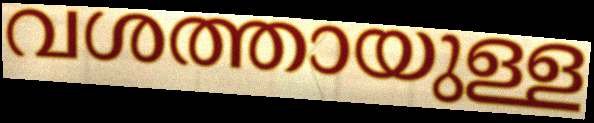
വശത്തായുള്ള